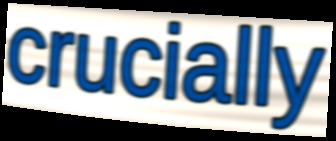
crucially